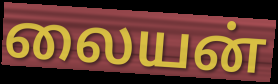
லையன்